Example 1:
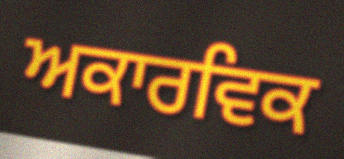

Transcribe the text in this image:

ਅਕਾਰਵਿਕ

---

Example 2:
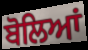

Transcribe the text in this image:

ਬੋਲਿਆਂ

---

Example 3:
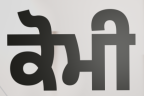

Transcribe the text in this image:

ਕੋਮੀ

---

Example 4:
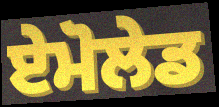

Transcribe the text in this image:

ਏਮੋਲੇਡ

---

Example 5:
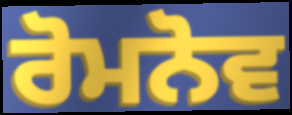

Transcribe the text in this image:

ਰੋਮਨੋਵ